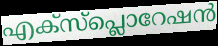
എക്സ്പ്ലൊറേഷൻ